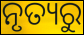
ନୃତ୍ୟରୁ